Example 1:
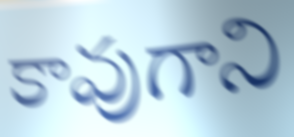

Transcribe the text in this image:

కావుగాని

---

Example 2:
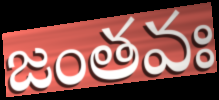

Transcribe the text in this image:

జంతవః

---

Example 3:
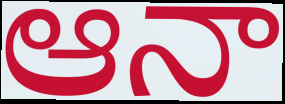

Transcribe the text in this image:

ఆనా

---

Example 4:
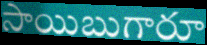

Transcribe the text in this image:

సాయిబుగారూ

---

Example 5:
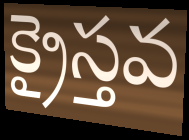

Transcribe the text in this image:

క్రైస్తవ